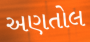
અણતોલ